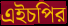
এইচপির